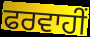
ਫਰਵਾਹੀਂ